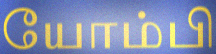
யோம்பி